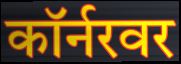
कॉर्नरवर